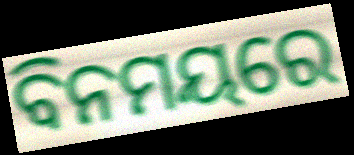
ବିନମୟରେ